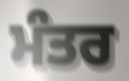
ਮੰਤਰ